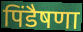
पिंडैषणा